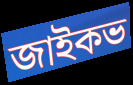
জাইকভ